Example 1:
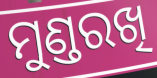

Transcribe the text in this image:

ମୁଣ୍ଡରଖି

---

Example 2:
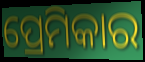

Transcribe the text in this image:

ପ୍ରେମିକାର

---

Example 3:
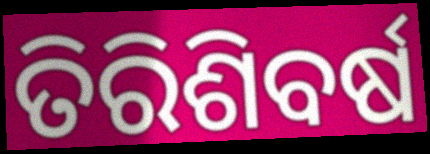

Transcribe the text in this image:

ତିରିଶିବର୍ଷ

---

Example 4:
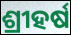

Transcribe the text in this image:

ଶ୍ରୀହର୍ଷ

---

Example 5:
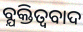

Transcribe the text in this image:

ବ୍ଯକ୍ତିତ୍ଵବାଦ